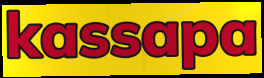
kassapa